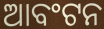
ଆବଂଟନ